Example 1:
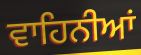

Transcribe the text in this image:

ਵਾਹਿਨੀਆਂ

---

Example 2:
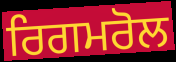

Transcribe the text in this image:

ਰਿਗਮਰੋਲ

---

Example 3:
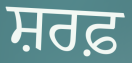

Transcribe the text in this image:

ਸ਼ਰਫ਼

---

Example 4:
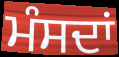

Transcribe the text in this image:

ਮੰਸਦਾਂ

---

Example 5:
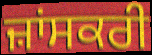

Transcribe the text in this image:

ਜ਼ਾਂਸਕਰੀ